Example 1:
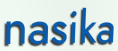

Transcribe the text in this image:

nasika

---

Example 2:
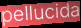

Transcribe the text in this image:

pellucida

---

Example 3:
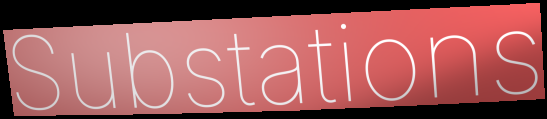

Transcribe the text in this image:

Substations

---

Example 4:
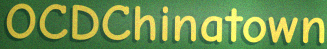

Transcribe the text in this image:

OCDChinatown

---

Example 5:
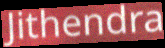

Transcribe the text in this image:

Jithendra